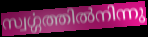
സ്വൎഗ്ഗത്തിൽനിന്നു